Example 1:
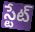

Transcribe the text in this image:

స్టేట్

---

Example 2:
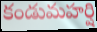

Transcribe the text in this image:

కండుమహర్షి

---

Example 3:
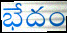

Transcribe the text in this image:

భేదం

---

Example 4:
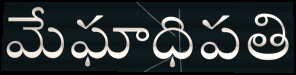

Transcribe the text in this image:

మేఘాధిపతి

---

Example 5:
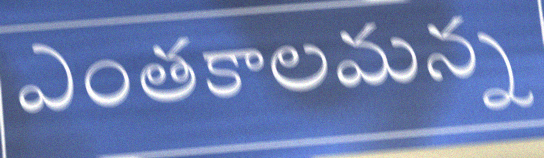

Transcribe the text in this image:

ఎంతకాలమన్న